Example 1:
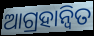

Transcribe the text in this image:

ଆଗ୍ରହାନ୍ୱିତ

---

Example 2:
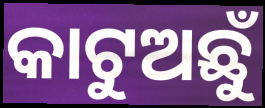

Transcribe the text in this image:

କାଟୁଅଛୁଁ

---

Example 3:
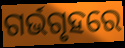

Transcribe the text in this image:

ଗର୍ଭଗୃହରେ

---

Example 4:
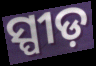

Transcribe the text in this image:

ସ୍ପୀଡ଼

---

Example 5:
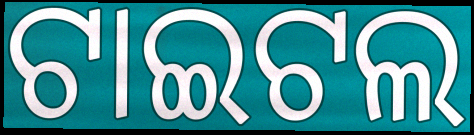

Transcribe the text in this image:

ଟାଇଟଲ